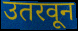
उतरवून